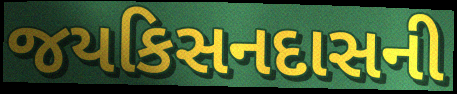
જયકિસનદાસની